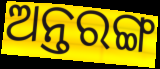
ଅନ୍ତରଙ୍ଗ